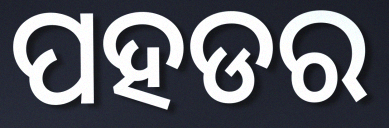
ପହଡର